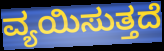
ವ್ಯಯಿಸುತ್ತದೆ